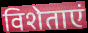
विशेताएं